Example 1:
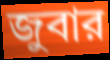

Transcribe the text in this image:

জুবার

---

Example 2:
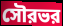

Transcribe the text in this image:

সৌরভর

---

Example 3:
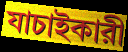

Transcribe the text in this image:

যাচাইকারী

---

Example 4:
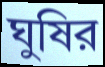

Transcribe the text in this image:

ঘুষির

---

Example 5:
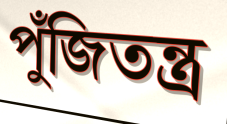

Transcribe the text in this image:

পুঁজিতন্ত্র